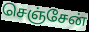
செஞ்சேன்